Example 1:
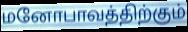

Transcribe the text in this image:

மனோபாவத்திற்கும்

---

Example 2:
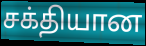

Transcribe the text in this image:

சக்தியான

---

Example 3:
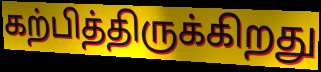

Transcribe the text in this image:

கற்பித்திருக்கிறது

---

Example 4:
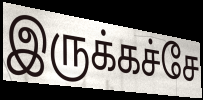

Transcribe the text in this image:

இருக்கச்சே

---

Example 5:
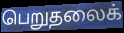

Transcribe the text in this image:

பெறுதலைக்